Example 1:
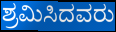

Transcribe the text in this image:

ಶ್ರಮಿಸಿದವರು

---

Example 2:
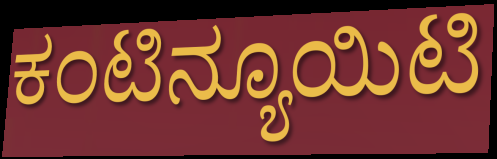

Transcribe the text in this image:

ಕಂಟಿನ್ಯೂಯಿಟಿ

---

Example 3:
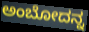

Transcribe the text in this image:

ಅಂಬೋದನ್ನ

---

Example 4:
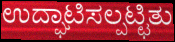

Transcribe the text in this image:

ಉದ್ಘಾಟಿಸಲ್ಪಟ್ಟಿತು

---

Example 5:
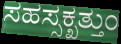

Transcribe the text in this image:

ಸಹಸ್ಸಕ್ಖತ್ತುಂ